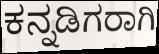
ಕನ್ನಡಿಗರಾಗಿ